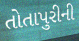
તોતાપુરીની